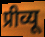
प्रीव्यू